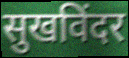
सुखविंदर